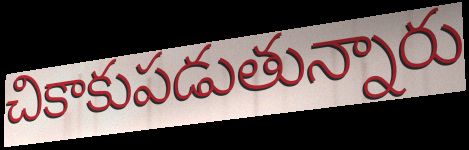
చికాకుపడుతున్నారు